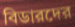
বিডারদের